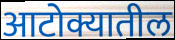
आटोक्यातील